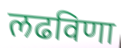
लढविणा